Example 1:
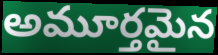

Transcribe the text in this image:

అమూర్తమైన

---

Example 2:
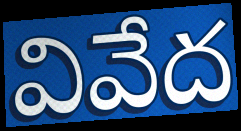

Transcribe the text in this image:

వివేద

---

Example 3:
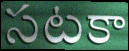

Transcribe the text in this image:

సటకా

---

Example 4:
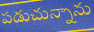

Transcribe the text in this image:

పడుచున్నాను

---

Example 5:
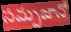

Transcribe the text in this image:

సమ్పజానో